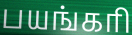
பயங்கரி